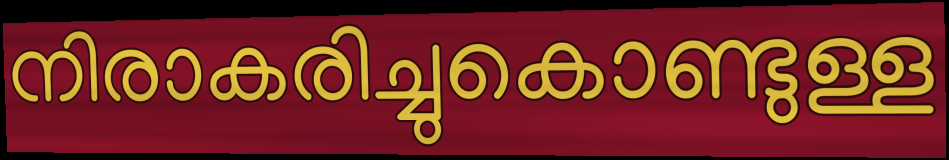
നിരാകരിച്ചുകൊണ്ടുള്ള